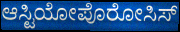
ಆಸ್ಟಿಯೋಪೊರೋಸಿಸ್